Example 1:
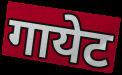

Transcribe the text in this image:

गायेट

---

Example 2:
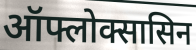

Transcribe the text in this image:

ऑफ्लोक्सासिन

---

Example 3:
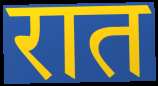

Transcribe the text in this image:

रात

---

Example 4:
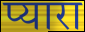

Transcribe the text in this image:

प्यारा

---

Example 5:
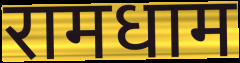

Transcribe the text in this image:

रामधाम